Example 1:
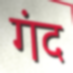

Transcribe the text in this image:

गंद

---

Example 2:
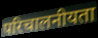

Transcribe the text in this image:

परिचालनीयता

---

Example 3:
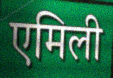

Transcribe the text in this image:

एमिली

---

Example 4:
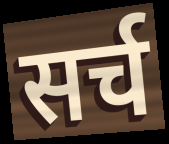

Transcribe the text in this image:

सर्च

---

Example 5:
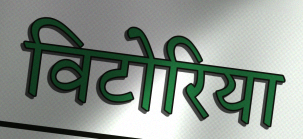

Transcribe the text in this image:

विटोरिया